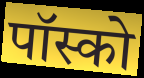
पॉस्को